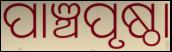
ପାଞ୍ଚପୃଷ୍ଠା